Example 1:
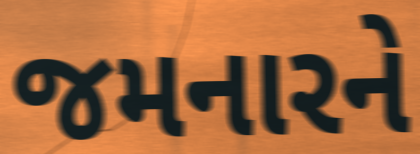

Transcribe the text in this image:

જમનારને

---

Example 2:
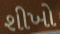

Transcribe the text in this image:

શીખો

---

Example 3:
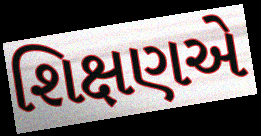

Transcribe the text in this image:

શિક્ષણએ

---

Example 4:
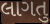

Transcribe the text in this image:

લાગતુ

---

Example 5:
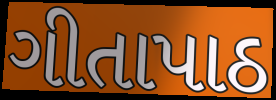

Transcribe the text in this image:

ગીતાપાઠ